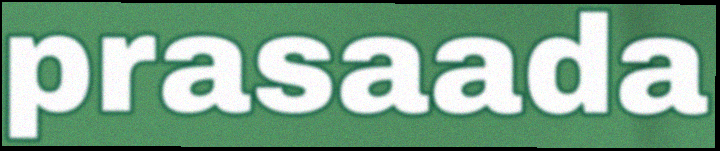
prasaada